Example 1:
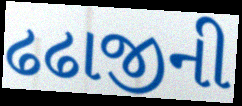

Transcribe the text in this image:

ઢઢાજીની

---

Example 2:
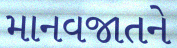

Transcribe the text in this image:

માનવજાતને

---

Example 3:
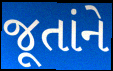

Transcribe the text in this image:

જૂતાંને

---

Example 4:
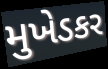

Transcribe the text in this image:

મુખેડકર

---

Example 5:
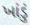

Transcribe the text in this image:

ખાંડું